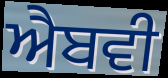
ਐਬਵੀ